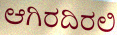
ಆಗಿರದಿರಲಿ